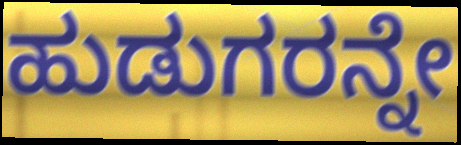
ಹುಡುಗರನ್ನೇ